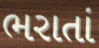
ભરાતાં